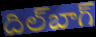
దిల్‌బాగ్